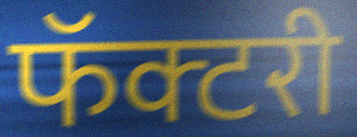
फॅक्‍टरी